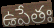
ఉపేతః